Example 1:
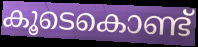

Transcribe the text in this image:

കൂടെകൊണ്ട്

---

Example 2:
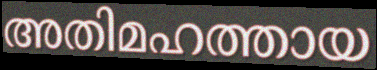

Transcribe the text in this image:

അതിമഹത്തായ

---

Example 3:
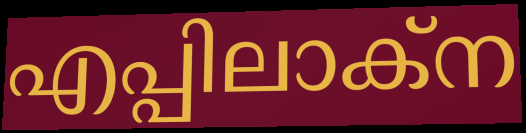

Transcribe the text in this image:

എപ്പിലാക്ന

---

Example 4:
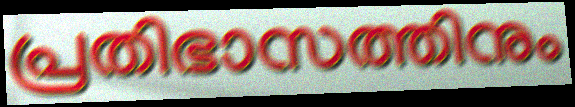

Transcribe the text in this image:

പ്രതിഭാസത്തിനും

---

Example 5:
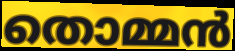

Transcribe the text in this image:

തൊമ്മൻ